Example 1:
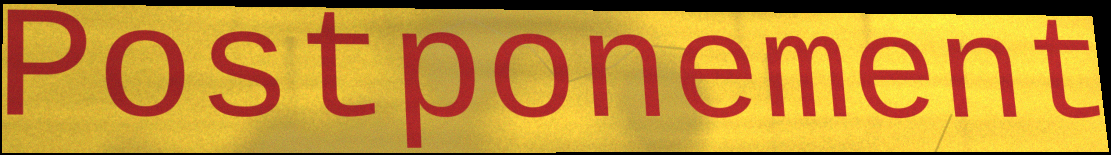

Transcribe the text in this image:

Postponement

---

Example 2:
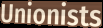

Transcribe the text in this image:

Unionists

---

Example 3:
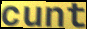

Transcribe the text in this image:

cunt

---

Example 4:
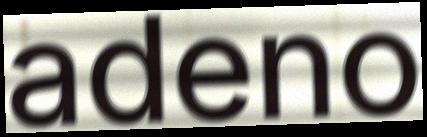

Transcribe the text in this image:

adeno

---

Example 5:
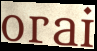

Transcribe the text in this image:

orai